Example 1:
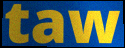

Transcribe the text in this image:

taw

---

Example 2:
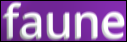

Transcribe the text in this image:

faune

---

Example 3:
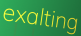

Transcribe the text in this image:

exalting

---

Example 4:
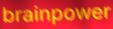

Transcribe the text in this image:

brainpower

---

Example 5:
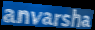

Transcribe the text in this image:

anvarsha